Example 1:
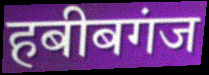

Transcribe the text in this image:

हबीबगंज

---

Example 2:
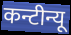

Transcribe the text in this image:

कन्टीन्यू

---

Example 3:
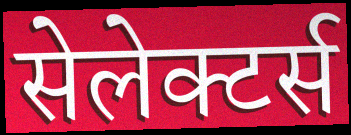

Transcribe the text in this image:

सेलेक्टर्स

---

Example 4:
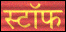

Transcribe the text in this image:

स्‍टॉफ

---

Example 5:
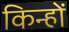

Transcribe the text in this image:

किन्हों